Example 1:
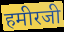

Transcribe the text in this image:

हमीरजी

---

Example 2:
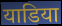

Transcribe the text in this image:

याडिया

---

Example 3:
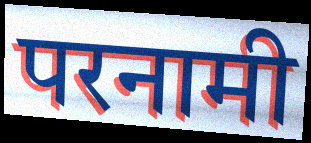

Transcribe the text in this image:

परनामी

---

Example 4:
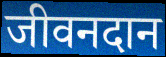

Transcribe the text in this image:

जीवनदान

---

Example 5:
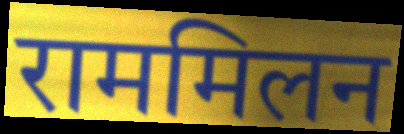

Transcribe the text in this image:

राममिलन